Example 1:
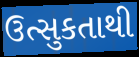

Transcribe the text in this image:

ઉત્સુકતાથી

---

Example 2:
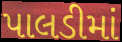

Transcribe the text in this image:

પાલડીમાં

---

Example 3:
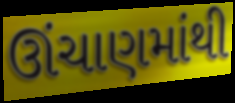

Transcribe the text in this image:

ઊંચાણમાંથી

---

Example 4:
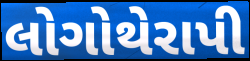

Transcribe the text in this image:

લોગોથેરાપી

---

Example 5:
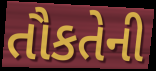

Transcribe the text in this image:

તૌકતેની